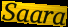
Saara